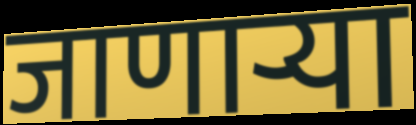
जाणाऱ्या